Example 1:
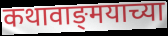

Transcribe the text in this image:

कथावाङ्मयाच्या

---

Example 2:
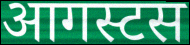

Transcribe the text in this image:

आगस्टस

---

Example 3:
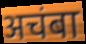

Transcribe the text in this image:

अचंबा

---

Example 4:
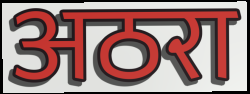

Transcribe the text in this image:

अठरा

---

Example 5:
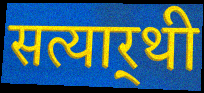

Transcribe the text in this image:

सत्यार्थी